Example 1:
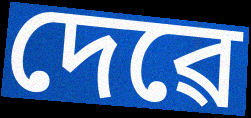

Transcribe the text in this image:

দেৱে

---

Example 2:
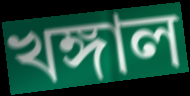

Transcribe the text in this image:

খঙ্গাল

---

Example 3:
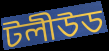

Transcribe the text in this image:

টলীউড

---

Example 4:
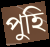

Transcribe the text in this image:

পুহি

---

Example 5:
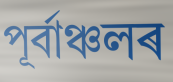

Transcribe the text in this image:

পূৰ্বাঞ্চলৰ